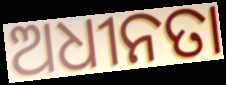
ଅଧୀନତା